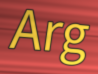
Arg